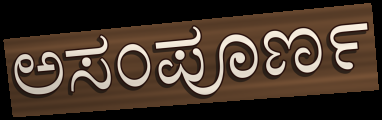
ಅಸಂಪೂರ್ಣ